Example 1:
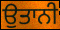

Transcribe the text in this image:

ਉਤਾਨੀ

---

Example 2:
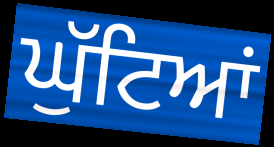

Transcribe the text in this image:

ਘੁੱਟਿਆਂ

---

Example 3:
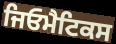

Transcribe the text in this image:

ਜਿਓਮੈਟਿਕਸ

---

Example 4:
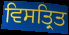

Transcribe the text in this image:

ਵਿਸਤ੍ਰਿਤ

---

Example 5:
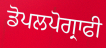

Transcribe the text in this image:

ਡੋਪਲਪੋਗ੍ਰਾਫੀ